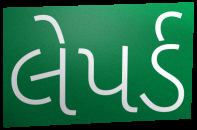
લેપર્ડ